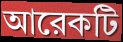
আরেকটি